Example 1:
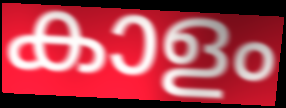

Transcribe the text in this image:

കാളം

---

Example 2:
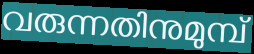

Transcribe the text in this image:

വരുന്നതിനുമുമ്പ്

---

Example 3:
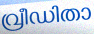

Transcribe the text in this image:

വ്രീഡിതാ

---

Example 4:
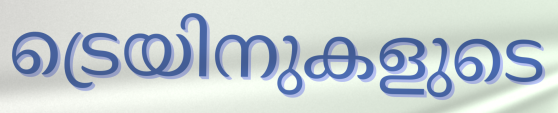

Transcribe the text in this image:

ട്രെയിനുകളുടെ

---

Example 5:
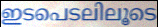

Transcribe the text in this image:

ഇടപെടലിലൂടെ